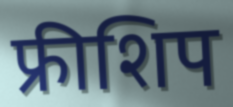
फ्रीशिप